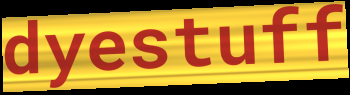
dyestuff